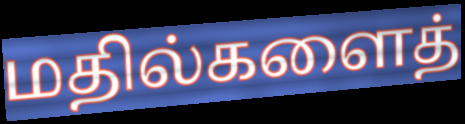
மதில்களைத்